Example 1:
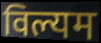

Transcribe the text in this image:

विल्यम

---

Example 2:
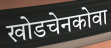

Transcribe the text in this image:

खोडचेनकोवा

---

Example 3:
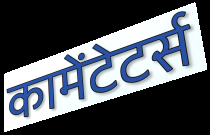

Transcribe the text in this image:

कामेंटेटर्स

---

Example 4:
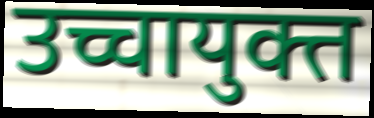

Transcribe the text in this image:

उच्चायुक्त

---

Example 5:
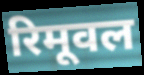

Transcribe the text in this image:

रिमूवल